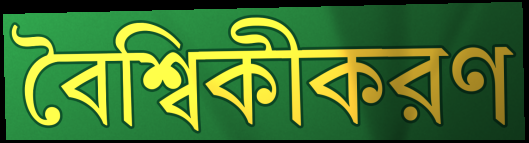
বৈশ্বিকীকরণ